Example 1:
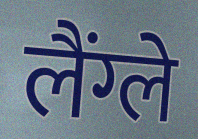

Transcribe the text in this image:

लैंग्ले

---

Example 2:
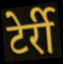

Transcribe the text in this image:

टेर्री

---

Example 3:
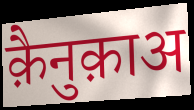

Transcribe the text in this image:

क़ैनुक़ाअ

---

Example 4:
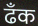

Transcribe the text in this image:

ढँक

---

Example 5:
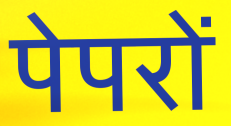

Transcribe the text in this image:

पेपरों